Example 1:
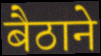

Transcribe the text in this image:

बैठाने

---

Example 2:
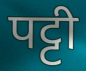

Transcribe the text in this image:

पट्टी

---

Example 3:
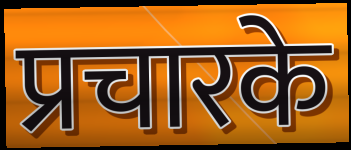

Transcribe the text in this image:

प्रचारके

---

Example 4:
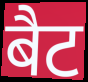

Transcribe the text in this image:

बैट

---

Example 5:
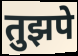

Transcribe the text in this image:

तुझपे